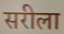
सरीला